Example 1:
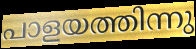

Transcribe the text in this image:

പാളയത്തിന്നു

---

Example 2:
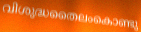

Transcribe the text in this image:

വിശുദ്ധതൈലംകൊണ്ടു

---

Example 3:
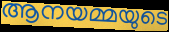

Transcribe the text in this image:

ആനയമ്മയുടെ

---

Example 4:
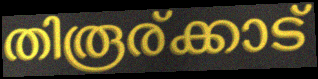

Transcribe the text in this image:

തിരൂര്ക്കാട്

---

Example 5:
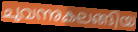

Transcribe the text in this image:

ചുവന്നുകലങ്ങിയ